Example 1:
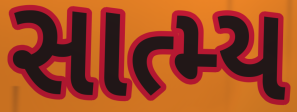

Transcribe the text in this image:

સાત્મ્ય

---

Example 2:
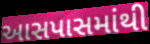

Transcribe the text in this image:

આસપાસમાંથી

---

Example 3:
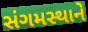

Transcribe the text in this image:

સંગમસ્થાને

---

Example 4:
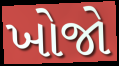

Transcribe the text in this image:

ખોજો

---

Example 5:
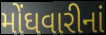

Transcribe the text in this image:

મોંઘવારીનાં